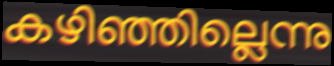
കഴിഞ്ഞില്ലെന്നു